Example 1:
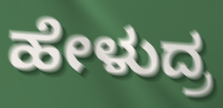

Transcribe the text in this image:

ಹೇಳುದ್ರ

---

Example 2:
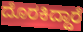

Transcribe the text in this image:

ದೊರಕಿದ್ದಾರೆ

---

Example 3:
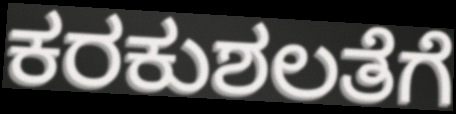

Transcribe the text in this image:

ಕರಕುಶಲತೆಗೆ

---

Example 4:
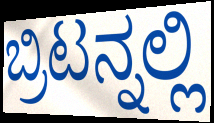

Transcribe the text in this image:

ಬ್ರಿಟನ್ನಲ್ಲಿ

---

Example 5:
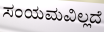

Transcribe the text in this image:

ಸಂಯಮವಿಲ್ಲದೆ